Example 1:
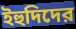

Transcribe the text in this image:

ইহুদিদের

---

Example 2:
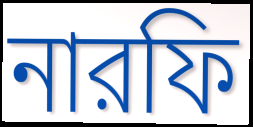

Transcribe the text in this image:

নারফি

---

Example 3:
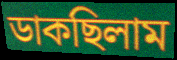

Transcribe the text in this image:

ডাকছিলাম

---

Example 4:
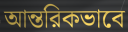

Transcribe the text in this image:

আন্তরিকভাবে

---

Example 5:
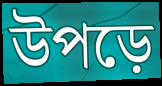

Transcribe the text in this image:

উপড়ে